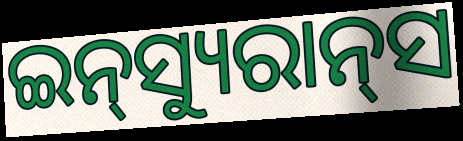
ଇନ୍‌ସ୍ୟୁରାନ୍‌ସ